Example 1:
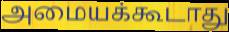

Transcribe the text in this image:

அமையக்கூடாது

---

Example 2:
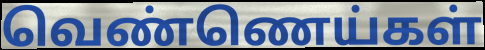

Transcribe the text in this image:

வெண்ணெய்கள்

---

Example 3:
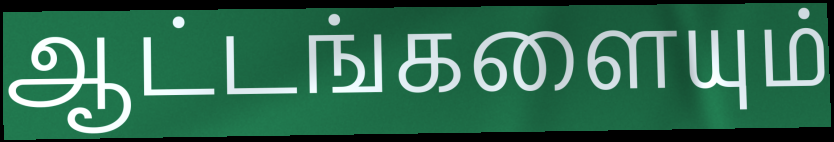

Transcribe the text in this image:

ஆட்டங்களையும்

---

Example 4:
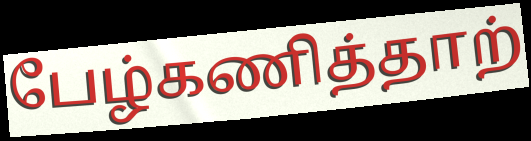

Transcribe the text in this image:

பேழ்கணித்தாற்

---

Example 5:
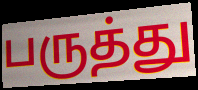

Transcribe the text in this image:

பருத்து